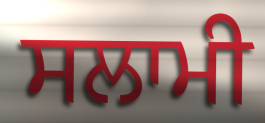
ਸਲਾਮੀ